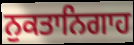
ਨੁਕਤਾਨਿਗਾਹ